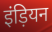
इंड़ियन